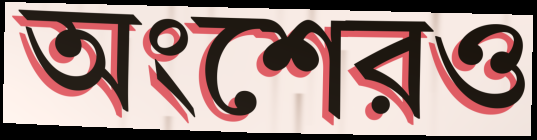
অংশেরও